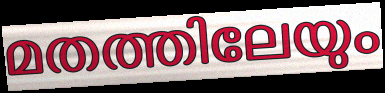
മതത്തിലേയും